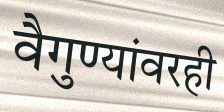
वैगुण्यांवरही